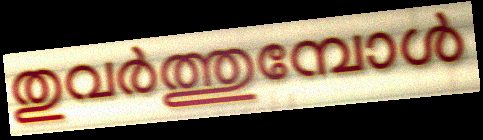
തുവർത്തുമ്പോൾ